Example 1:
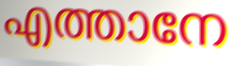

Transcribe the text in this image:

എത്താനേ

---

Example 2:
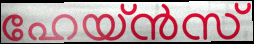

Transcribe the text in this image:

ഹേയ്ൻസ്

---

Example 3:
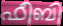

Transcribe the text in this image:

ഫീബി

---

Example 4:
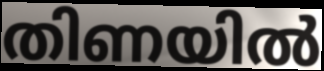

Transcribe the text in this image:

തിണയിൽ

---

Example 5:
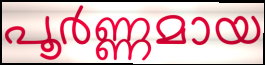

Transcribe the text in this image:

പൂർണ്ണമായ